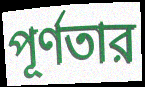
পূর্ণতার